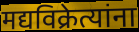
मद्यविक्रेत्यांना